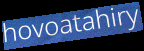
hovoatahiry